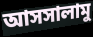
আসসালামু